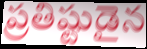
ప్రతిష్టుడైన